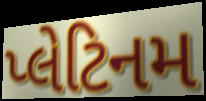
પ્લેટિનમ